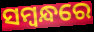
ସମ୍ୱନ୍ଧରେ